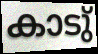
കാടു്